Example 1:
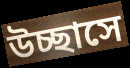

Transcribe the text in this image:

উচ্ছাসে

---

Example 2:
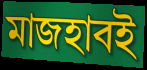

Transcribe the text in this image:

মাজহাবই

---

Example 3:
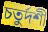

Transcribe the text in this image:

চতুর্দশী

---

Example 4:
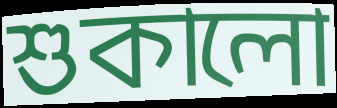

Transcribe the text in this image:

শুকালো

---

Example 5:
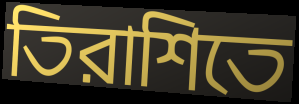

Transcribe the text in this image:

তিরাশিতে